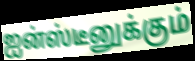
ஐன்ஸ்டீனுக்கும்